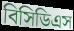
বিসিডিএস